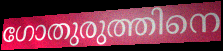
ഗോതുരുത്തിനെ